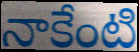
నాకేంటి